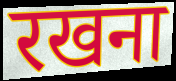
रखना